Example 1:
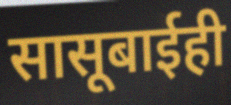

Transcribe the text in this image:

सासूबाईही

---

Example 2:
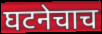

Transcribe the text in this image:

घटनेचाच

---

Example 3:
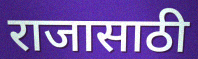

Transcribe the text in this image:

राजासाठी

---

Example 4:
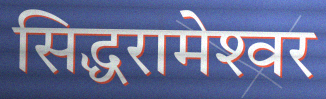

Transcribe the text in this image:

सिद्धरामेश्‍वर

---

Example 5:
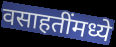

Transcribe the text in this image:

वसाहतींमध्ये